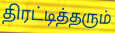
திரட்டித்தரும்